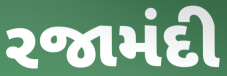
રજામંદી